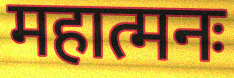
महात्मनः